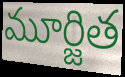
మూర్జిత